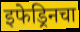
इफेड्रिनचा